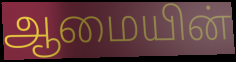
ஆமையின்